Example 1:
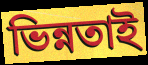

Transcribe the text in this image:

ভিন্নতাই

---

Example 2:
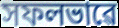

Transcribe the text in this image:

সফলভাৱে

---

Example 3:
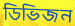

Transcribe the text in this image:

ডিভিজন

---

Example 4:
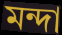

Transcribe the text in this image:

মন্দা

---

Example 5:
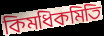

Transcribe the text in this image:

কিমধিকমিতি